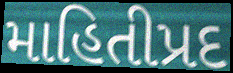
માહિતીપ્રદ